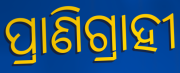
ପ୍ରାଣିଗ୍ରାହୀ